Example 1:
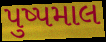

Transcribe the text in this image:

પુષ્પમાલ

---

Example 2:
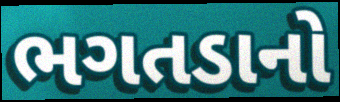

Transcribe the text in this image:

ભગતડાનો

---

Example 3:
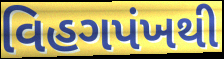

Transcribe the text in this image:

વિહગપંખથી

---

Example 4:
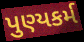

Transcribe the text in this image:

પુણ્યકર્મ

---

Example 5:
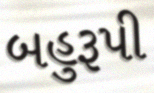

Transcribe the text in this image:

બહુરૂપી